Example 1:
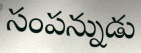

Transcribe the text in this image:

సంపన్నుడు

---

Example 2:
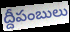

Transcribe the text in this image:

ద్దీపంబులు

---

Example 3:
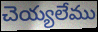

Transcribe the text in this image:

చెయ్యలేము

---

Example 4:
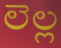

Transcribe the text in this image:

లెల్ల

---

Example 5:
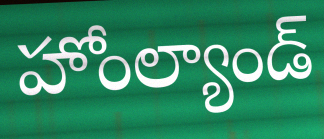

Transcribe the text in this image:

హోంల్యాండ్